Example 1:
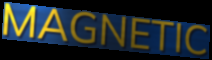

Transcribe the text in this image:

MAGNETIC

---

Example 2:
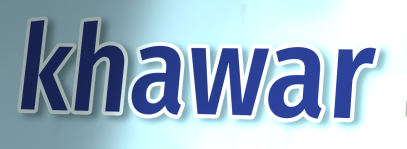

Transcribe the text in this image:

khawar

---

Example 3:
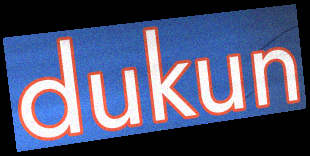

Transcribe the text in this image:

dukun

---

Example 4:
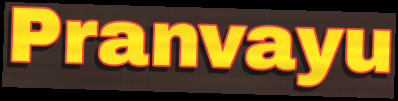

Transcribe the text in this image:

Pranvayu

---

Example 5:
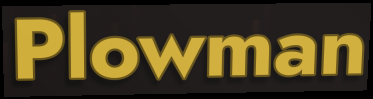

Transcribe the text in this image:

Plowman